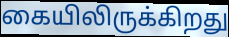
கையிலிருக்கிறது